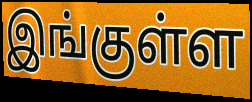
இங்குள்ள